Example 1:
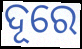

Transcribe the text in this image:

ଦୂରେ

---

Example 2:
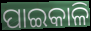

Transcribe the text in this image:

ପାଇକାଳି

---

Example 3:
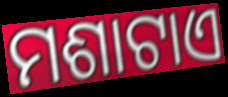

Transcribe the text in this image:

ମଶାଟାଏ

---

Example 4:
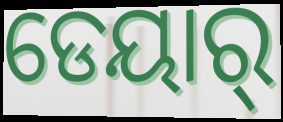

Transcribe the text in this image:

ଡେୟାର୍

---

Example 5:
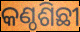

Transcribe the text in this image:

କଣ୍ଠଶିଛୀ